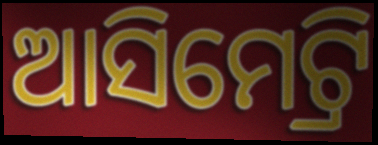
ଆସିମେଟ୍ରି